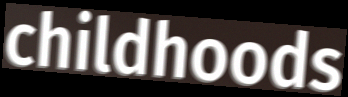
childhoods